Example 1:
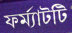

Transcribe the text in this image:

ফর্ম্যাটটি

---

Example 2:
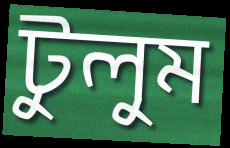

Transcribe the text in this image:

টুলুম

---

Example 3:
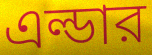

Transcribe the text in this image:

এল্ডার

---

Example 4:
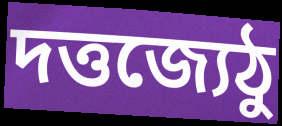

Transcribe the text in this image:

দত্তজ্যেঠু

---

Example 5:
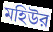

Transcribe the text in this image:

মহিউর